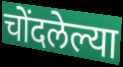
चोंदलेल्या